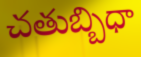
చతుబ్బిధా